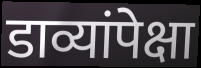
डाव्यांपेक्षा